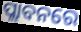
ପ୍ଲାବନରେ